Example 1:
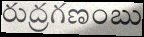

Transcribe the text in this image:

రుద్రగణంబు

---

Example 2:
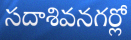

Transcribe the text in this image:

సదాశివనగర్లో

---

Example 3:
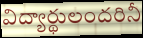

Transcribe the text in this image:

విద్యార్థులందరినీ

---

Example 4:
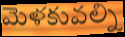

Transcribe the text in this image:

మెళకువల్ని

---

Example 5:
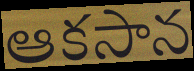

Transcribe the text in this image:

ఆకసాన